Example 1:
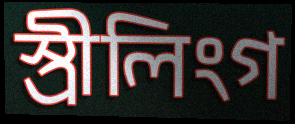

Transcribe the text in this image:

স্ত্ৰীলিংগ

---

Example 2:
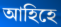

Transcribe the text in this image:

আহিহে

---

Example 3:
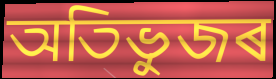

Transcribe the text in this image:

অতিভুজৰ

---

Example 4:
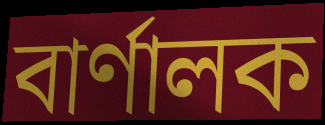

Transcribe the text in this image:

বাৰ্ণালক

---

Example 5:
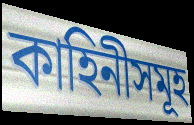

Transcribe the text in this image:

কাহিনীসমূহ